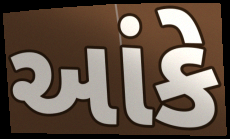
આંકે